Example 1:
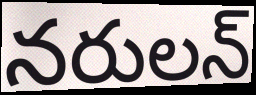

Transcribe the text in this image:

నరులన్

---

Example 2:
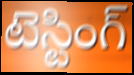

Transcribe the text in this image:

టెస్టింగ్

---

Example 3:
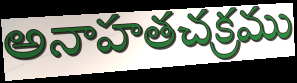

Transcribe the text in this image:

అనాహతచక్రము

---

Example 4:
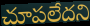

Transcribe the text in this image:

చూపలేదని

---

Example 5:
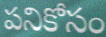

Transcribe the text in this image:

పనికోసం